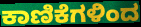
ಕಾಣಿಕೆಗಳಿಂದ